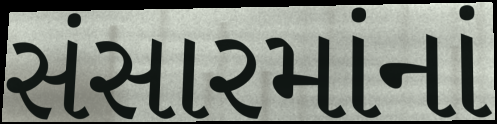
સંસારમાંનાં